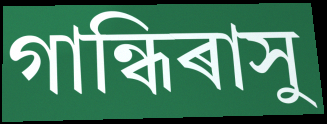
গান্ধিৰাসু